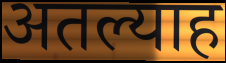
अतल्याह